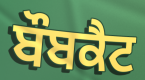
ਬੌਬਕੈਟ